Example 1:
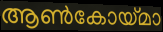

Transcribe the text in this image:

ആൺകോയ്മാ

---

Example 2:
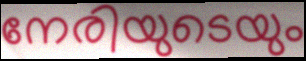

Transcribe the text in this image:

നേരിയുടെയും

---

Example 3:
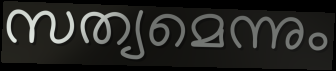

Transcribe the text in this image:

സത്യമെന്നും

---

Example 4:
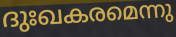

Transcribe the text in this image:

ദുഃഖകരമെന്നു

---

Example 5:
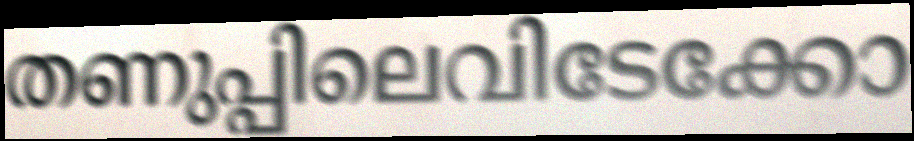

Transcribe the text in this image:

തണുപ്പിലെവിടേക്കോ